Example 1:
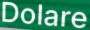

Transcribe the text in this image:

Dolare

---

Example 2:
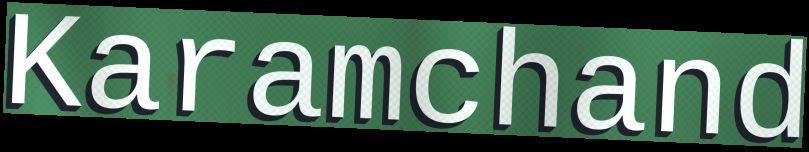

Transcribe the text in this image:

Karamchand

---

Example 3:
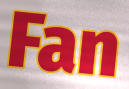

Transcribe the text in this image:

Fan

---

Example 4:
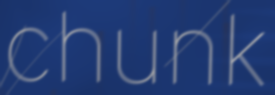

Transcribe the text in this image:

chunk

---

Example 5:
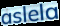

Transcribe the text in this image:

aslela